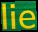
lie